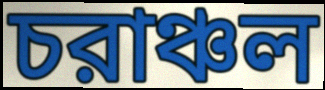
চরাঞ্চল